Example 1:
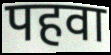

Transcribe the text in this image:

पहवा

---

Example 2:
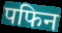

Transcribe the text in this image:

पफिन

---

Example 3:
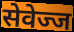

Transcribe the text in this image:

सेवेज्ज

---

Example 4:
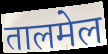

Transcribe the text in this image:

तालमेल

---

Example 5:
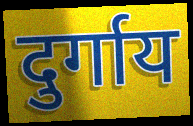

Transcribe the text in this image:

दुर्गाय